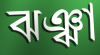
ঝঞ্ঝা